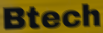
Btech